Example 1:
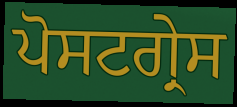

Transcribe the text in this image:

ਪੋਸਟਗ੍ਰੇਸ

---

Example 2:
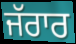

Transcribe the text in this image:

ਜੱਰਾਰ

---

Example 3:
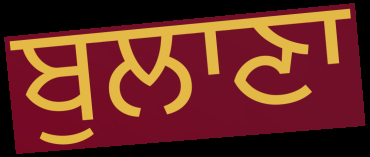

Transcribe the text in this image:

ਬੁਲਾਣਾ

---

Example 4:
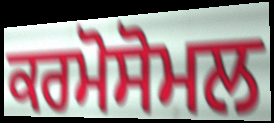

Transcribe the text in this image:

ਕਰਮੋਸੋਮਲ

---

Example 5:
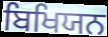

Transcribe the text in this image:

ਬਿਖਿਯਨ